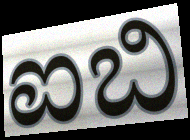
ಐಬಿ